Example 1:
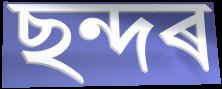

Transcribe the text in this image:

ছন্দৰ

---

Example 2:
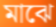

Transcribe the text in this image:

মাঝে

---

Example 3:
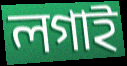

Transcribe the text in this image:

লগাই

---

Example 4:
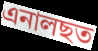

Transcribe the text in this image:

এনালছত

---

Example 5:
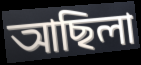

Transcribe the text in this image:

আছিলা